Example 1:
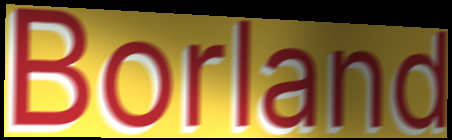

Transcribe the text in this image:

Borland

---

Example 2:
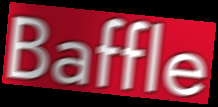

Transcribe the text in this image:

Baffle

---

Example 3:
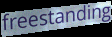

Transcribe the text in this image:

freestanding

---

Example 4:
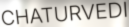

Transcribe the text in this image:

CHATURVEDI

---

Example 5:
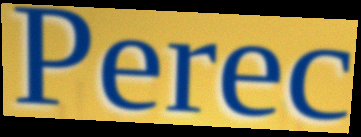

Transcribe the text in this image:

Perec